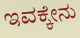
ಇವಕ್ಕೇನು